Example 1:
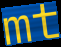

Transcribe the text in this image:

mt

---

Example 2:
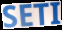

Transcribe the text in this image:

SETI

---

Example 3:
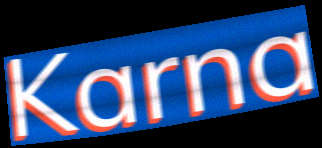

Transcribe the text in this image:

Karna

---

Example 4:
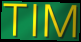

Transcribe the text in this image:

TIM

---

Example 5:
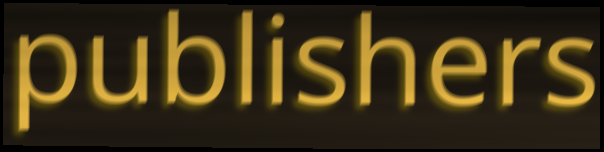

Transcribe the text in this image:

publishers